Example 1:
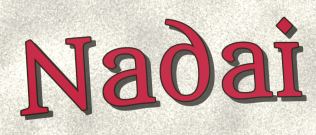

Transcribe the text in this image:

Nadai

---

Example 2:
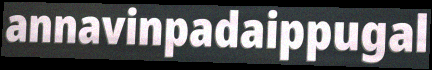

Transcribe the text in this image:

annavinpadaippugal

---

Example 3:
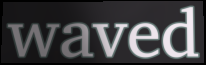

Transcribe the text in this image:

waved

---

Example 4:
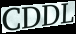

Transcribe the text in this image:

CDDL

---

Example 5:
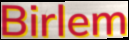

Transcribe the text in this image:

Birlem